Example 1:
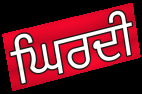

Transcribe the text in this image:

ਘਿਰਦੀ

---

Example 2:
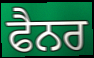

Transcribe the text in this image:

ਫੈਨਰ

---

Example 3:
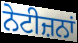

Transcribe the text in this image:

ਨੇਟੀਜ਼ਨਾਂ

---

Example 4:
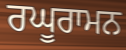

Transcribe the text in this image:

ਰਘੂਰਾਮਨ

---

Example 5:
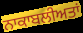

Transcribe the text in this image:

ਨਾਕਾਬਲੀਅਤਾਂ